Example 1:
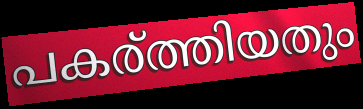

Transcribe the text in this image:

പകര്ത്തിയതും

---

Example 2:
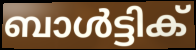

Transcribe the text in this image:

ബാൾട്ടിക്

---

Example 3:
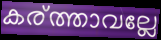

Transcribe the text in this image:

കര്ത്താവല്ലേ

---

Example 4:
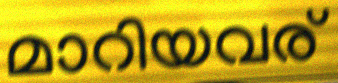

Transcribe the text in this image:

മാറിയവര്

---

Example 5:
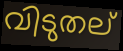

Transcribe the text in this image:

വിടുതല്